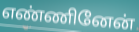
எண்ணினேன்